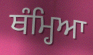
ਥੰਮ੍ਹਿਆ